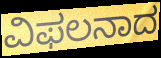
ವಿಫಲನಾದ